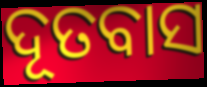
ଦୂତବାସ